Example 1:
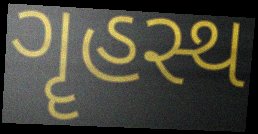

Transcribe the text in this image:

ગૄહસ્થ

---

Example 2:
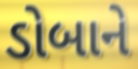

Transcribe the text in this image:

ડોબાને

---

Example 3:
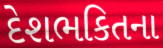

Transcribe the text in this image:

દેશભકિતના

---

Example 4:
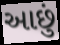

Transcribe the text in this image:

આછું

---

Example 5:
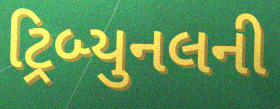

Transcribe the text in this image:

ટ્રિબ્યુનલની